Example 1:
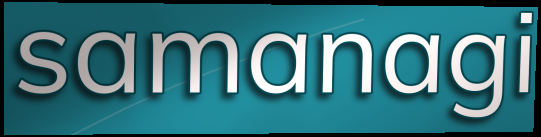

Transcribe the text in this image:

samanagi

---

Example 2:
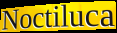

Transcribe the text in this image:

Noctiluca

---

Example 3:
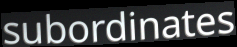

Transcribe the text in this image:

subordinates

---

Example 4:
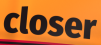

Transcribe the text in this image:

closer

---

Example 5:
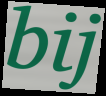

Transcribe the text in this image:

bij